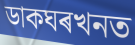
ডাকঘৰখনত